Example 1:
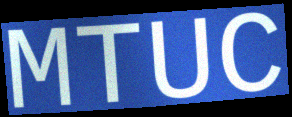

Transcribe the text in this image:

MTUC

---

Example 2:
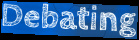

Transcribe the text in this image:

Debating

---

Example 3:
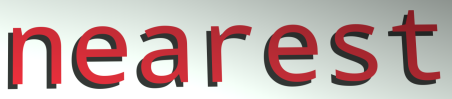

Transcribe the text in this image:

nearest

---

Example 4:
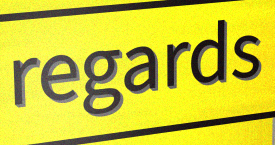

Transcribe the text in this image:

regards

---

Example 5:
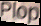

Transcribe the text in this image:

Plop